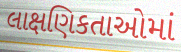
લાક્ષણિકતાઓમાં